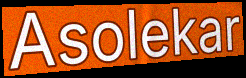
Asolekar